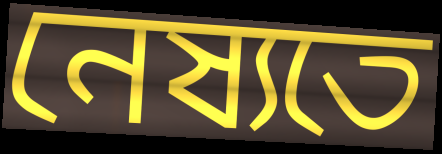
নেষ্যতে